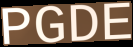
PGDE